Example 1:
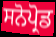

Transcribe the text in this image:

ਸਨੋਪ੍ਰੋਡ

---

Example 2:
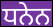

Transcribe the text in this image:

ਧਨੇਨ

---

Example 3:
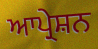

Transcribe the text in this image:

ਆਪ੍ਰੇਸ਼ਨ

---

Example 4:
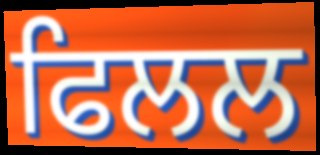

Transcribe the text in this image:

ਫਿਲਲ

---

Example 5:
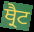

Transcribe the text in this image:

ਥ੍ਰੈਟ